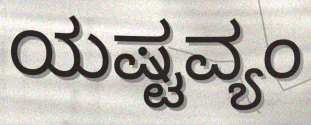
ಯಷ್ಟವ್ಯಂ